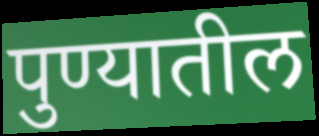
पुण्यातील